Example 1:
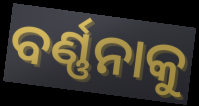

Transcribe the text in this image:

ବର୍ଣ୍ଣନାକୁ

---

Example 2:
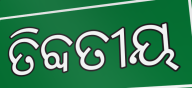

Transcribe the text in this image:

ତିବ୍ଦତୀୟ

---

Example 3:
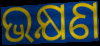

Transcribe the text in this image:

ଭକ୍ଷଣ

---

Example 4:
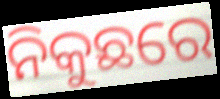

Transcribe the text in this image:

ନିକୁଛରେ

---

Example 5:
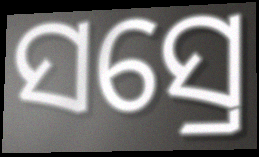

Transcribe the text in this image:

ସସ୍ରେ